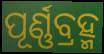
ପୂର୍ଣ୍ଣବ୍ରହ୍ମ